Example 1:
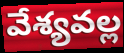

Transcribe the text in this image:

వేశ్యవల్ల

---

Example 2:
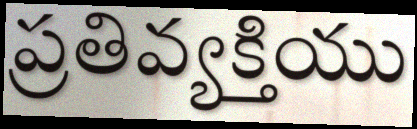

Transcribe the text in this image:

ప్రతివ్యక్తియు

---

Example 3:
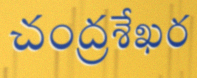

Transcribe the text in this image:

చంద్రశేఖర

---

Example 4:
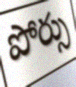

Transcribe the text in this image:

పోర్సు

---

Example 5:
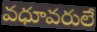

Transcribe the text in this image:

వధూవరులే